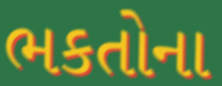
ભકતોના